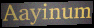
Aayinum